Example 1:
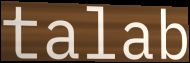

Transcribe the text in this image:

talab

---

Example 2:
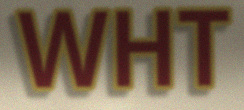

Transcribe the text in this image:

WHT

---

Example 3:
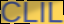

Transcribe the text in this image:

CLIL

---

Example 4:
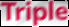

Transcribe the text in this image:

Triple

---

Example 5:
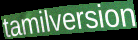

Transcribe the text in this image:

tamilversion